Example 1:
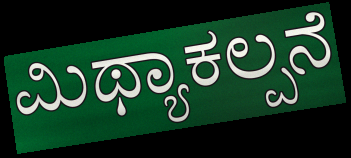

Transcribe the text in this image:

ಮಿಥ್ಯಾಕಲ್ಪನೆ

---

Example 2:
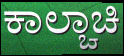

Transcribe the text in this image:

ಕಾಲ್ಚಾಚಿ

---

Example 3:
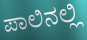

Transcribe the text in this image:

ಪಾಲಿನಲ್ಲಿ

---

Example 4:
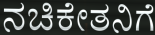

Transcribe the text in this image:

ನಚಿಕೇತನಿಗೆ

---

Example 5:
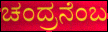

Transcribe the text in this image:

ಚಂದ್ರನೆಂಬ